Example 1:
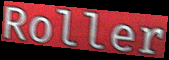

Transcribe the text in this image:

Roller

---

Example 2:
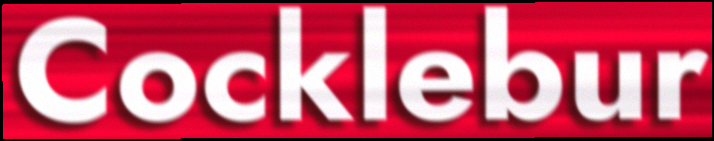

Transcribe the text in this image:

Cocklebur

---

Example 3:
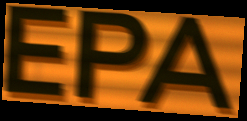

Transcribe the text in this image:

EPA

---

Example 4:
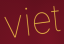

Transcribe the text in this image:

viet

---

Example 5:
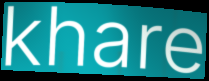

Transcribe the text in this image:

khare